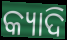
କ୍ୟାଦି